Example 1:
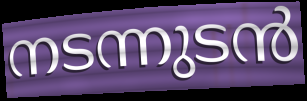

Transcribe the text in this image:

നടന്നുടൻ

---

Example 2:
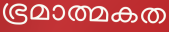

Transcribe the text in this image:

ഭ്രമാത്മകത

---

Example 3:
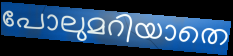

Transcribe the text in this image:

പോലുമറിയാതെ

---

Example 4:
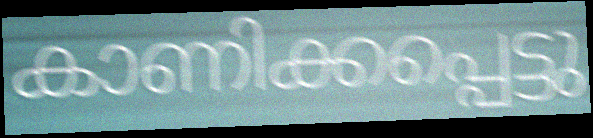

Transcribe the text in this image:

കാണിക്കപ്പെട്ടു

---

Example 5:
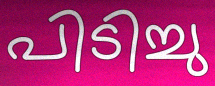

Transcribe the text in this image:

പിടിച്ചു